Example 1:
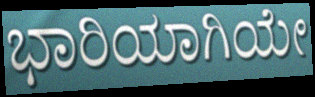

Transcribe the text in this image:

ಭಾರಿಯಾಗಿಯೇ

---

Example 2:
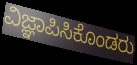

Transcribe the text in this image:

ವಿಜ್ಞಾಪಿಸಿಕೊಂಡರು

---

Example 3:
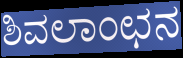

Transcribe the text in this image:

ಶಿವಲಾಂಛನ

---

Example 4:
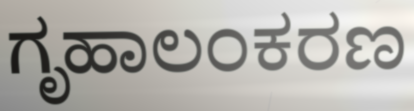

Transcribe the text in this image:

ಗೃಹಾಲಂಕರಣ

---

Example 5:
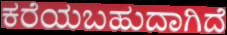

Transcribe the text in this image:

ಕರೆಯಬಹುದಾಗಿದೆ